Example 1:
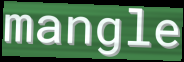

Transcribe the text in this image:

mangle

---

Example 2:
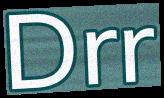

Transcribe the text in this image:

Drr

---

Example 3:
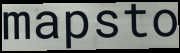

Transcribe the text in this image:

mapsto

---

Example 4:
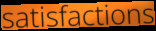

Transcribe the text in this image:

satisfactions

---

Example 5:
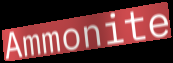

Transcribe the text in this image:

Ammonite